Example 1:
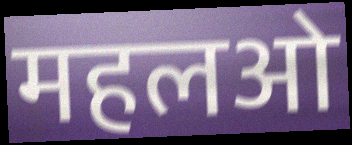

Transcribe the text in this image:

महलओ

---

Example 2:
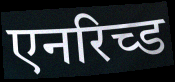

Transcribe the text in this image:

एनरिच्ड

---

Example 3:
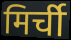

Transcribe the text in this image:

मिर्ची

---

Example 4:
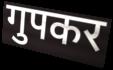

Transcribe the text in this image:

गुपकर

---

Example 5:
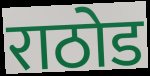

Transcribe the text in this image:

राठोड